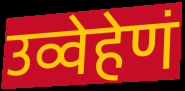
उव्वेहेणं